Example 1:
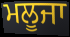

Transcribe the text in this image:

ਮਲੂਜਾ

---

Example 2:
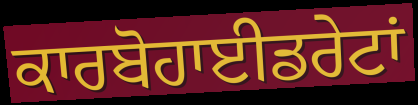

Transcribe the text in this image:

ਕਾਰਬੋਹਾਈਡਰੇਟਾਂ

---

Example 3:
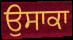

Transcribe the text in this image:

ਉਸਾਕਾ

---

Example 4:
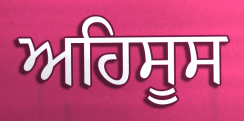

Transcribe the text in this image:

ਅਹਿਸੂਸ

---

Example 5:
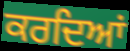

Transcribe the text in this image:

ਕਰਦਿਆਂ